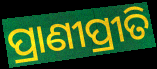
ପ୍ରାଣୀପ୍ରୀତି